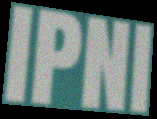
IPNI